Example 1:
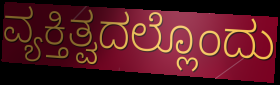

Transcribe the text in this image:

ವ್ಯಕ್ತಿತ್ವದಲ್ಲೊಂದು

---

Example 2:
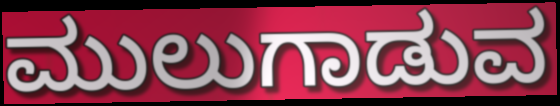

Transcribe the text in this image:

ಮುಲುಗಾಡುವ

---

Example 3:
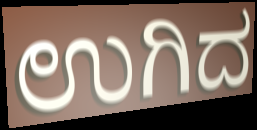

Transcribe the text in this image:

ಉಗಿದ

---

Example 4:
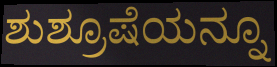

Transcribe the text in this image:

ಶುಶ್ರೂಷೆಯನ್ನೂ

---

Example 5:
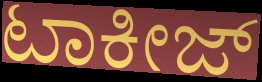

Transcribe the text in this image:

ಟಾಕೀಜ್